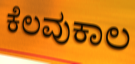
ಕೆಲವುಕಾಲ